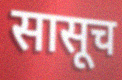
सासूच